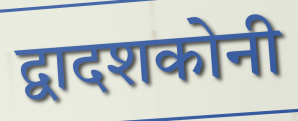
द्वादशकोनी